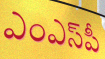
ఎంఎస్‌పీ